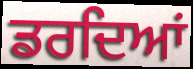
ਡਰਦਿਆਂ